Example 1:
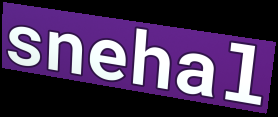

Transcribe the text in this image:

snehal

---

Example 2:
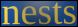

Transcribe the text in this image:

nests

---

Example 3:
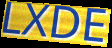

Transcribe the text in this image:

LXDE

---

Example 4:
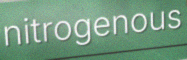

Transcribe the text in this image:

nitrogenous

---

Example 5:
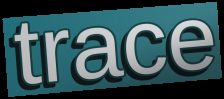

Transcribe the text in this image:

trace